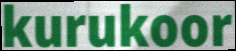
kurukoor